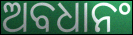
ଅବଧାନଂ